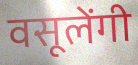
वसूलेंगी